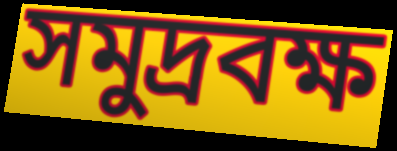
সমুদ্রবক্ষ